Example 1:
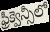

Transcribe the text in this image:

ఫ్రీక్వెన్సీలో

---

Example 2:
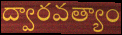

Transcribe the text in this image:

ద్వారవత్యాం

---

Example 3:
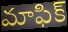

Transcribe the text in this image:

మాఫిక్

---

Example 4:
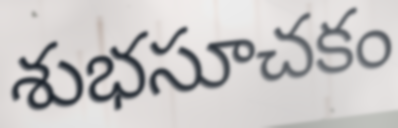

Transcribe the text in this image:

శుభసూచకం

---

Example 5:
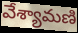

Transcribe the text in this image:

వేశ్యామణి